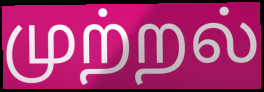
முற்றல்